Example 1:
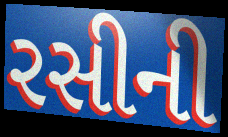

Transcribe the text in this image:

રસીની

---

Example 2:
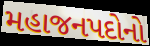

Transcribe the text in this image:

મહાજનપદોનો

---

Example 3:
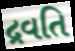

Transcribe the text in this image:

દ્રવતિ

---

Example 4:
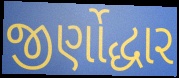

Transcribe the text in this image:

જીર્ણોદ્ધાર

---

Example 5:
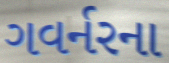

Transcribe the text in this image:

ગવર્નરના